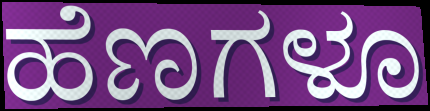
ಹೆಣಗಳೂ